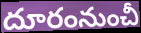
దూరంనుంచీ